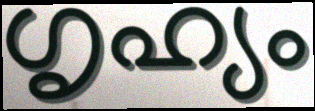
ഗൃഹ്യം